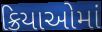
ક્રિયાઓમાં